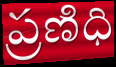
ప్రణిధి